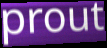
prout